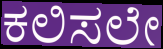
ಕಲಿಸಲೇ